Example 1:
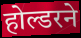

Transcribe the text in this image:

होल्डरने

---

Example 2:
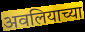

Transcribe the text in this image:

अवलियाच्या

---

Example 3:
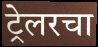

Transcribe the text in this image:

ट्रेलरचा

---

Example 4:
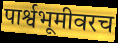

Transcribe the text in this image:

पार्श्वभूमीवरच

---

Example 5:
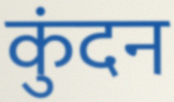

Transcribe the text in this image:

कुंदन